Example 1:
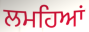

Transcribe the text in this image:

ਲਮਹਿਆਂ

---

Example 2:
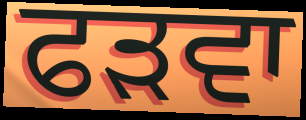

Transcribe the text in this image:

ਫੜਵਾ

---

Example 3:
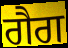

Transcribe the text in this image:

ਗੈਗ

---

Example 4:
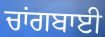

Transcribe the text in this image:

ਚਾਂਗਬਾਈ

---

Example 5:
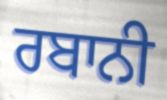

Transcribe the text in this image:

ਰਬਾਨੀ